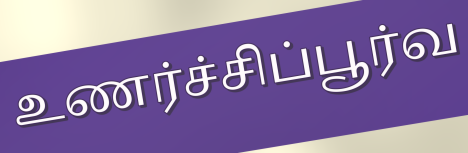
உணர்ச்சிப்பூர்வ